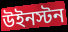
উইনস্টন